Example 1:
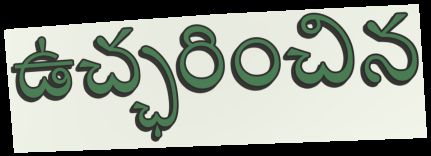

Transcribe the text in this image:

ఉచ్ఛరించిన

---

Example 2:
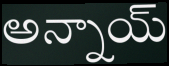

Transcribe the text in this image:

అన్నాయ్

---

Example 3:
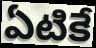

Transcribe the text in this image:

ఏటికే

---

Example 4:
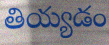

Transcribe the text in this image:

తియ్యడం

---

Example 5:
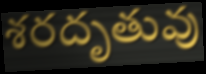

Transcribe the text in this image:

శరదృతువు